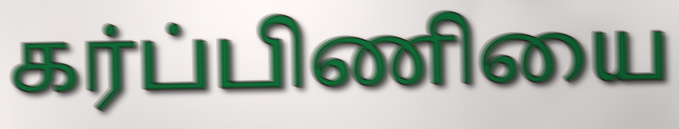
கர்ப்பிணியை